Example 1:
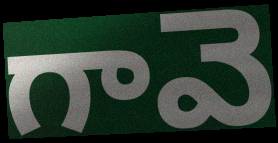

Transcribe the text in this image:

గావె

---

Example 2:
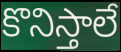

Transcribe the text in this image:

కొనిస్తాలే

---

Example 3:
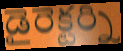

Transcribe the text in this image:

డైరెక్టర్ని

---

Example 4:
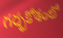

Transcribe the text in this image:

గర్భకోశంలో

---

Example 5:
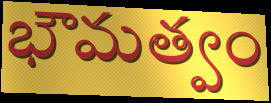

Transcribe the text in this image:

భౌమత్వం